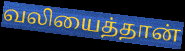
வலியைத்தான்